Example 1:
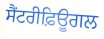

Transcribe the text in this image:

ਸੈਂਟਰੀਫ਼ਿਊਗਲ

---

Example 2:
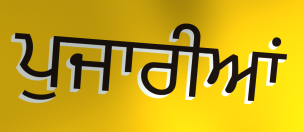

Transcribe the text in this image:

ਪੁਜਾਰੀਆਂ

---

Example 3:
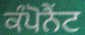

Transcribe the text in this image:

ਕੰਪੋਨੈਂਟ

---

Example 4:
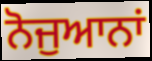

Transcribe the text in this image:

ਨੋਜੁਆਨਾਂ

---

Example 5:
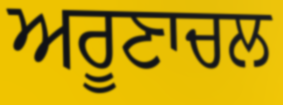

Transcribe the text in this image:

ਅਰੂਣਾਚਲ